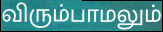
விரும்பாமலும்